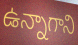
ఉన్నాగాని